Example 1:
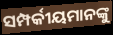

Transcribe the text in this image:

ସମ୍ପର୍କୀୟମାନଙ୍କୁ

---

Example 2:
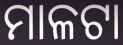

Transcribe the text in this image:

ମାଳଟା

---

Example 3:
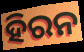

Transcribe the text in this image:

ହିରନ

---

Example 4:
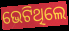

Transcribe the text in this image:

ଭେଟିଥିଲେ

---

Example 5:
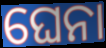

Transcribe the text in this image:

ଘେନା